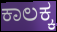
ಕಾಲಕ್ಕ